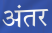
अंतर